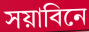
সয়াবিনে